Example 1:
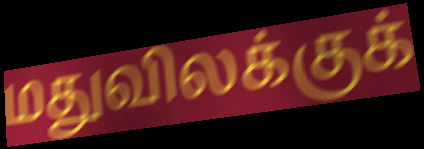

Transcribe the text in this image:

மதுவிலக்குக்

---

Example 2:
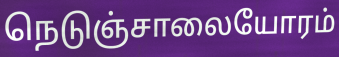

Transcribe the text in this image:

நெடுஞ்சாலையோரம்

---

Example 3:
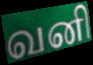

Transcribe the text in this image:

வனி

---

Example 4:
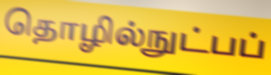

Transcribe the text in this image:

தொழில்நுட்பப்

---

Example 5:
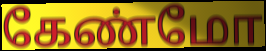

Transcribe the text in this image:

கேண்மோ